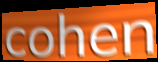
cohen